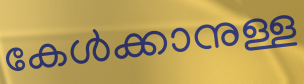
കേൾക്കാനുള്ള